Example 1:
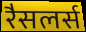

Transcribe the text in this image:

रैसलर्स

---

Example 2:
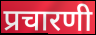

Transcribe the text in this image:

प्रचारणी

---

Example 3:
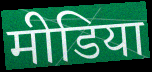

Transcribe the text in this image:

मीडिया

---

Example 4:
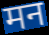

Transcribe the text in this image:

मन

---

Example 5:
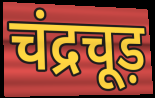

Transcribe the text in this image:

चंद्रचूड़